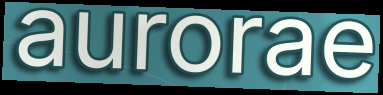
aurorae